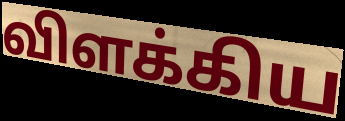
விளக்கிய